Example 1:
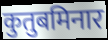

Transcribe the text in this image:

कुतुबमिनार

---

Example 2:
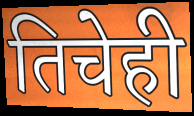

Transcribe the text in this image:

तिचेही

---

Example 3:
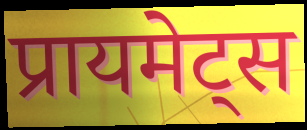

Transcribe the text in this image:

प्रायमेट्स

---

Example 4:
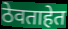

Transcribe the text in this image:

ठेवताहेत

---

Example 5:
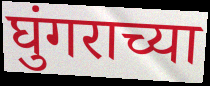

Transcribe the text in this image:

घुंगराच्या